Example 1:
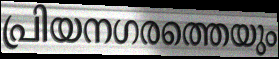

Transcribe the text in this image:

പ്രിയനഗരത്തെയും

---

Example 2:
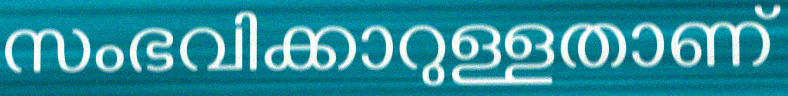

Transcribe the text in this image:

സംഭവിക്കാറുള്ളതാണ്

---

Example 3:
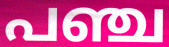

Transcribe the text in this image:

പഞ്ച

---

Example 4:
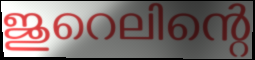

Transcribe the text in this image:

ജുറെലിന്റെ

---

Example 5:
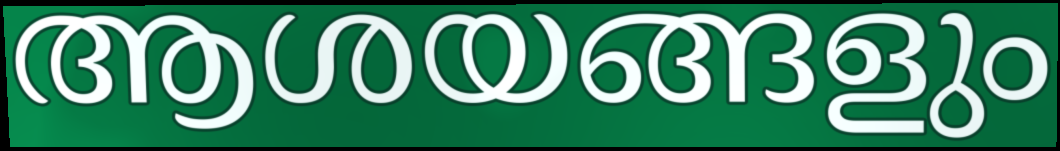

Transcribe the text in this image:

ആശയങ്ങളും